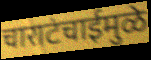
चाराटंचाईमुळे